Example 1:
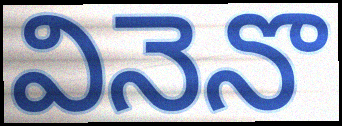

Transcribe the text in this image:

వినెనొ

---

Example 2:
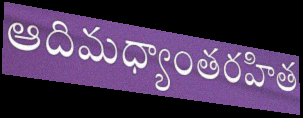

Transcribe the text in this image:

ఆదిమధ్యాంతరహిత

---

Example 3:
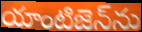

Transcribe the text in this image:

యాంటిజెన్‌ను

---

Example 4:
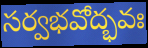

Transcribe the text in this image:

సర్వభవోద్భవః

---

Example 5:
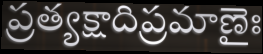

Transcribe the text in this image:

ప్రత్యక్షాదిప్రమాణైః